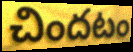
చిందటం